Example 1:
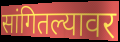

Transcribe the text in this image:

सांगितल्यावर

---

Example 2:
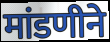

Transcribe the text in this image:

मांडणीने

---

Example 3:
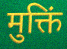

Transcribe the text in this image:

मुक्तिं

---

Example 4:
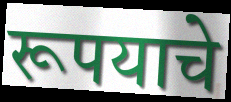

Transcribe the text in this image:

रूपयाचे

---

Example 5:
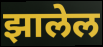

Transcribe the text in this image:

झालेल